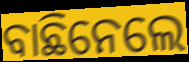
ବାଛିନେଲେ